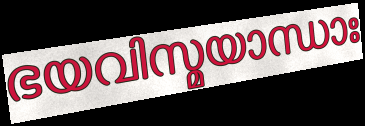
ഭയവിസ്മയാന്ധാഃ